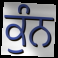
ਕੁੰਨ